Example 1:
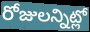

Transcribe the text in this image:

రోజులన్నిట్లో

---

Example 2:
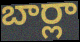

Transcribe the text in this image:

బార్లా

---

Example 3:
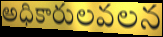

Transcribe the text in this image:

అధికారులవలన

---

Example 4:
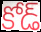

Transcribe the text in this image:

కోడ్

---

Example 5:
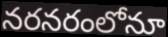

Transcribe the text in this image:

నరనరంలోనూ